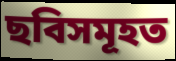
ছবিসমূহত